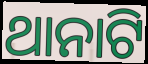
ଥାନାଟି